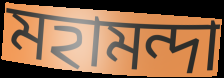
মহামন্দা